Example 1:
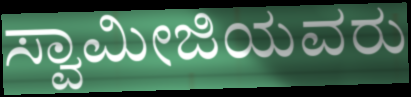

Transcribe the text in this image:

ಸ್ವಾಮೀಜಿಯವರು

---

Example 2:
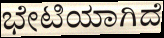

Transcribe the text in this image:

ಭೇಟಿಯಾಗಿದೆ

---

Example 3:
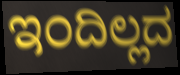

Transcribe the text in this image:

ಇಂದಿಲ್ಲದ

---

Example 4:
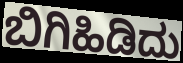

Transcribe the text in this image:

ಬಿಗಿಹಿಡಿದು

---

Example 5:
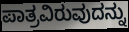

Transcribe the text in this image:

ಪಾತ್ರವಿರುವುದನ್ನು